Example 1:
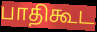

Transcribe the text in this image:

பாதிகூட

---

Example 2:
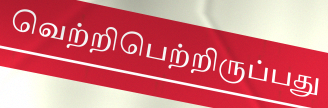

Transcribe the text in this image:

வெற்றிபெற்றிருப்பது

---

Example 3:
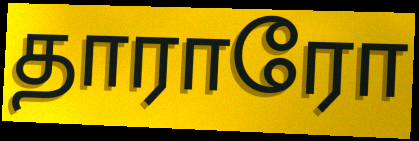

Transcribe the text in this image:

தாராரோ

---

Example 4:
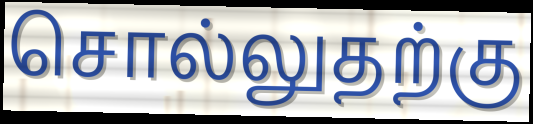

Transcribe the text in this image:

சொல்லுதற்கு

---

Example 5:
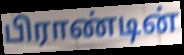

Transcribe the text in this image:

பிராண்டின்